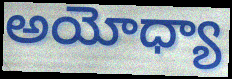
అయోధ్యా